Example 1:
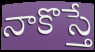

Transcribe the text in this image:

నాకొస్తే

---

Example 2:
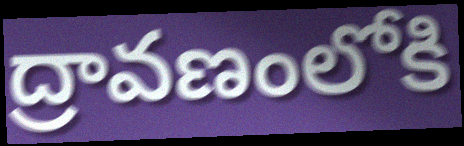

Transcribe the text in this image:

ద్రావణంలోకి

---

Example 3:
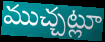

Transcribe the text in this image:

ముచ్చట్లూ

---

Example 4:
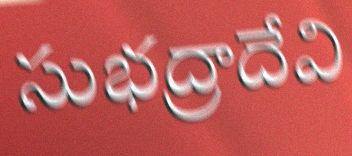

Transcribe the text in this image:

సుభద్రాదేవి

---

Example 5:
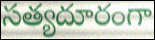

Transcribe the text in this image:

సత్యదూరంగా